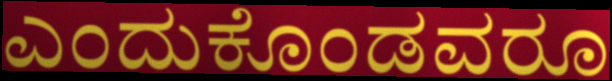
ಎಂದುಕೊಂಡವರೂ